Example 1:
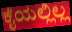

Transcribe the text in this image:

ಕೈಯಲ್ಲಿಲ್ಲ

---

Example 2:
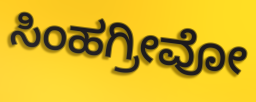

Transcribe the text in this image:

ಸಿಂಹಗ್ರೀವೋ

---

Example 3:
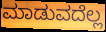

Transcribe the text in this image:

ಮಾಡುವದೆಲ್ಲ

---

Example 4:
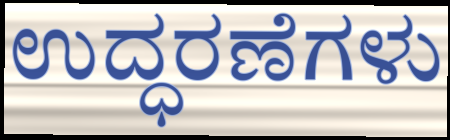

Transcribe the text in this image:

ಉದ್ಧರಣೆಗಳು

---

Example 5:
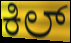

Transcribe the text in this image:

ಕಿಲ್